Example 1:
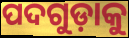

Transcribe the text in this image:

ପଦଗୁଡ଼ାକୁ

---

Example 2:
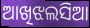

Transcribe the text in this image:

ଆଖିଝଲସିଆ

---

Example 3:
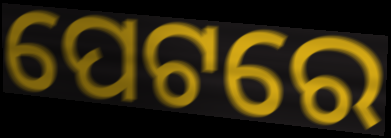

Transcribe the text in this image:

ପେଟରେ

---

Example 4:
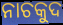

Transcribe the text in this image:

ନାଚକୁଦ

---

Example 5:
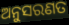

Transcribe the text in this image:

ଅନୁସରଣତ